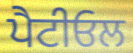
ਪੈਟੀਓਲ